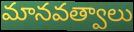
మానవత్వాలు